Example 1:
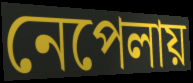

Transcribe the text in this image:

নেপেলায়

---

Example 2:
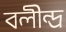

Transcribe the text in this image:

বলীন্দ্ৰ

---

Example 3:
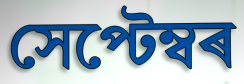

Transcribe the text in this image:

সেপ্টেম্বৰ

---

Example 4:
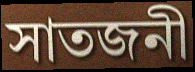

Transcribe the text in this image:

সাতজনী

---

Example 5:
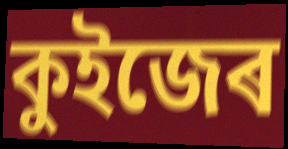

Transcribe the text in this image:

কুইজেৰ